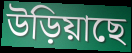
উড়িয়াছে